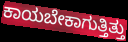
ಕಾಯಬೇಕಾಗುತ್ತಿತ್ತು